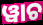
ୱାଚ